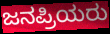
ಜನಪ್ರಿಯರು